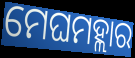
ମେଘମହ୍ଲାର